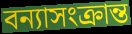
বন্যাসংক্রান্ত